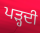
ਪਡ਼੍ਹਦੀ